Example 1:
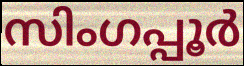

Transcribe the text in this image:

സിംഗപ്പൂർ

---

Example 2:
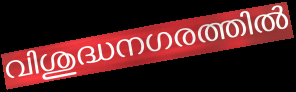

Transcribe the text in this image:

വിശുദ്ധനഗരത്തിൽ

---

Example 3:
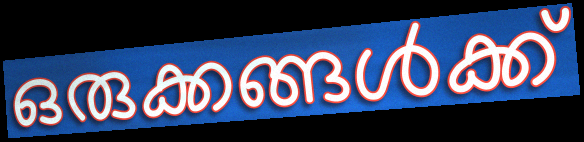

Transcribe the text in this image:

ഒരുക്കങ്ങൾക്ക്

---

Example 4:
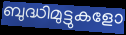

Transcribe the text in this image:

ബുദ്ധിമുട്ടുകളോ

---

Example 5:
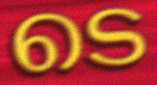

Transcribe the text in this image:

ടെ